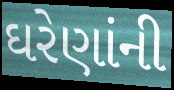
ઘરેણાંની